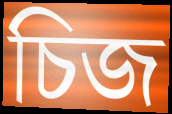
চিজ